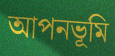
আপনভূমি